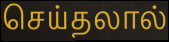
செய்தலால்